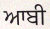
ਆਬੀ